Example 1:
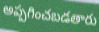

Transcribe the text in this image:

అప్పగించబడతారు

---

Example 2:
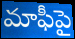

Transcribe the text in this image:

మాఫీపై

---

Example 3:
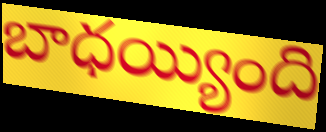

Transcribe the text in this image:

బాధయ్యింది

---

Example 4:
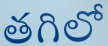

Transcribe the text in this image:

తగిలో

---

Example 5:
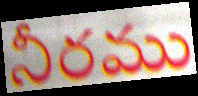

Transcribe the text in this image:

నీరము